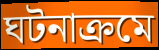
ঘটনাক্রমে